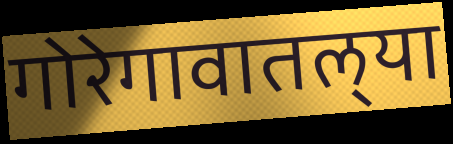
गोरेगावातल्या